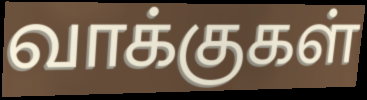
வாக்குகள்